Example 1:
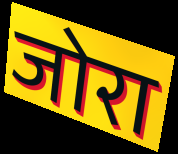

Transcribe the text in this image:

जोरा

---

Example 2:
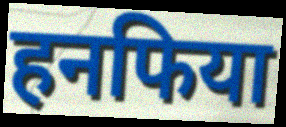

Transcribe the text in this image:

हनफिया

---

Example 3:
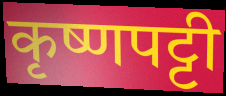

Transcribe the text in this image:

कृष्णपट्टी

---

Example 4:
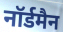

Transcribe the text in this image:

नॉर्डमैन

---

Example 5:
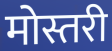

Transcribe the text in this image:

मोस्तरी